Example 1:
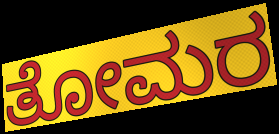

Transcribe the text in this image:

ತೋಮರ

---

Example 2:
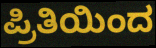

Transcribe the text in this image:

ಪ್ರಿತಿಯಿಂದ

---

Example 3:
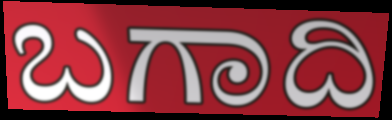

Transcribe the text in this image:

ಬಗಾದಿ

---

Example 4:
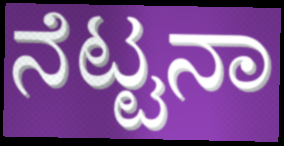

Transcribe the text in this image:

ನೆಟ್ಟನಾ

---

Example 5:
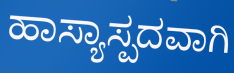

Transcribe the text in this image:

ಹಾಸ್ಯಾಸ್ಪದವಾಗಿ